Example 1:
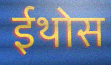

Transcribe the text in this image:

ईथोस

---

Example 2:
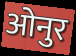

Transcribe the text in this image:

ओनुर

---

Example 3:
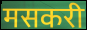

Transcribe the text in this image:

मसकरी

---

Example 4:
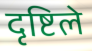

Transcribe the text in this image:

दृष्टिले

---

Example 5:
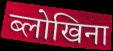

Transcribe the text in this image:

ब्लोखिना